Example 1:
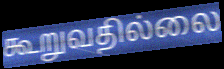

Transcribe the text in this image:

கூறுவதில்லை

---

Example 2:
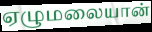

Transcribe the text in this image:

ஏழுமலையான்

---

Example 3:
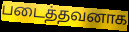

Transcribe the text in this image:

படைத்தவனாக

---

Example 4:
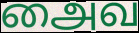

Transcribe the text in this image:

அைவ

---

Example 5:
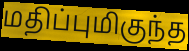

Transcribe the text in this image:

மதிப்புமிகுந்த